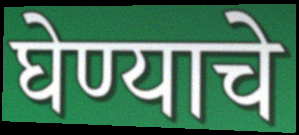
घेण्याचे